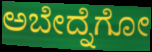
ಅಬೇದ್ನೆಗೋ